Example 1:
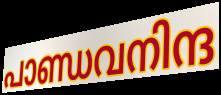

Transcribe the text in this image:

പാണ്ഡവനിന്ദ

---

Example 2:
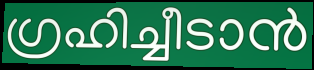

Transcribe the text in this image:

ഗ്രഹിച്ചീടാൻ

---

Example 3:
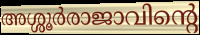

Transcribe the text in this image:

അശ്ശൂർരാജാവിന്റെ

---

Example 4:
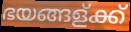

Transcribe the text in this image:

ഭയങ്ങള്ക്ക്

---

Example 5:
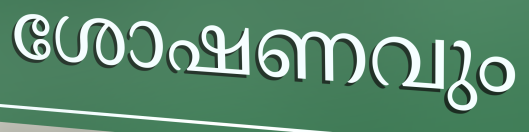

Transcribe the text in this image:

ശോഷണവും